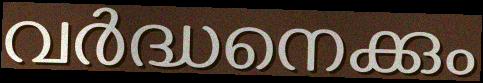
വർദ്ധനെക്കും